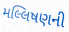
મલ્લિષણની